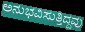
ಅನುಭವಿಸುತ್ತಿದ್ದವು